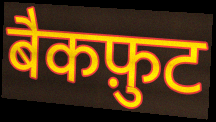
बैकफ़ुट